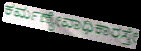
ಕರ್ಮಣ್ಯೇವಾಧಿಕಾರಸ್ತೇ